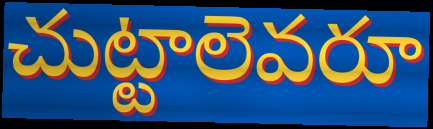
చుట్టాలెవరూ